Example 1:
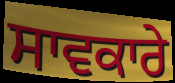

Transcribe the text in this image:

ਸਾਵਕਾਰੇ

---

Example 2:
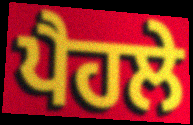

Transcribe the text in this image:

ਪੈਹਲੇ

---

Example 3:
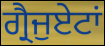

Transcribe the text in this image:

ਗ੍ਰੈਜੁਏਟਾਂ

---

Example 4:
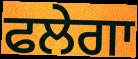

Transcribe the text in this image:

ਫਲੇਗਾ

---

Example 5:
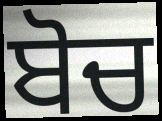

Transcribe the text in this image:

ਬੋਚ